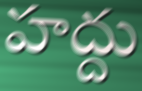
హద్దు